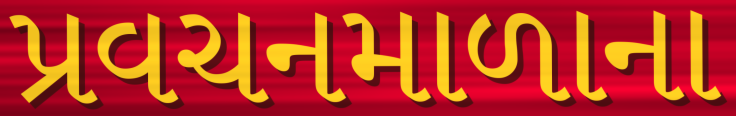
પ્રવચનમાળાના